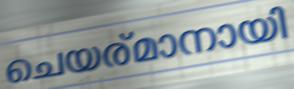
ചെയര്മാനായി